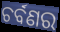
ଚର୍ବଣର